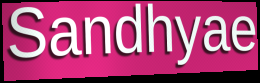
Sandhyae